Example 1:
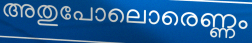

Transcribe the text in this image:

അതുപോലൊരെണ്ണം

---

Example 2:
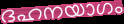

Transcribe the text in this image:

ദഹനയാഗം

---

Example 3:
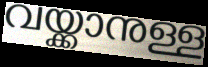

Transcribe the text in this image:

വയ്ക്കാനുള്ള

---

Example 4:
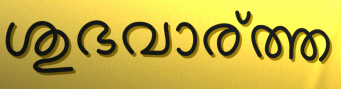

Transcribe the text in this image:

ശുഭവാര്ത്ത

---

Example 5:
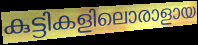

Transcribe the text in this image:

കുട്ടികളിലൊരാളായ